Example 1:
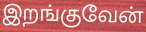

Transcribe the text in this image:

இறங்குவேன்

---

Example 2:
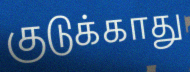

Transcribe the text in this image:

குடுக்காது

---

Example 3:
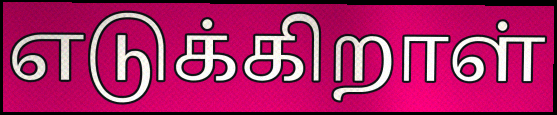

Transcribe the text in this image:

எடுக்கிறாள்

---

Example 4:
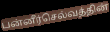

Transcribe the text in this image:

பன்னீர்செல்வத்தின்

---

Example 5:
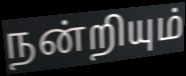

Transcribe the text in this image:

நன்றியும்